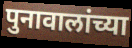
पुनावालांच्या